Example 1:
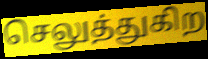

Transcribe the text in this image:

செலுத்துகிற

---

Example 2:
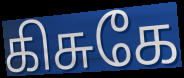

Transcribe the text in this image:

கிசுகே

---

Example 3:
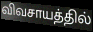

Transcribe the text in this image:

விவசாயத்தில்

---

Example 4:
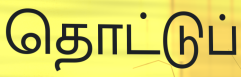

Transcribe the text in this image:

தொட்டுப்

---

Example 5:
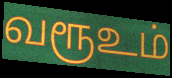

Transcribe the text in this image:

வரூஉம்